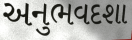
અનુભવદશા